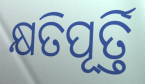
କ୍ଷତିପୂର୍ତ୍ତି